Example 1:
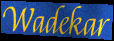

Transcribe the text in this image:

Wadekar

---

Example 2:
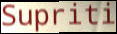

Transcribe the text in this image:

Supriti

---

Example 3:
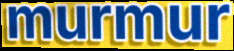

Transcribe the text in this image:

murmur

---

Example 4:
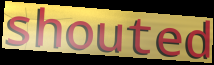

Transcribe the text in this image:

shouted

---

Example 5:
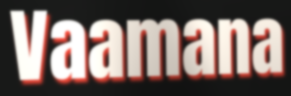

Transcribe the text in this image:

Vaamana